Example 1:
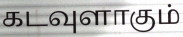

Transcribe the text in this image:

கடவுளாகும்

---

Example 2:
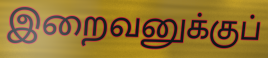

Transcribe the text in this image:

இறைவனுக்குப்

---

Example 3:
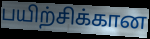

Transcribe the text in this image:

பயிற்சிக்கான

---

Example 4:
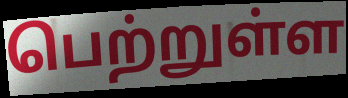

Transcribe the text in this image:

பெற்றுள்ள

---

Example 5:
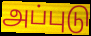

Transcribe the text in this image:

அப்புடு